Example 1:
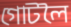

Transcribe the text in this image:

গোটলৈ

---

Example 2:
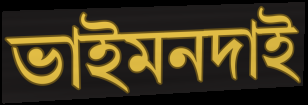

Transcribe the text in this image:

ভাইমনদাই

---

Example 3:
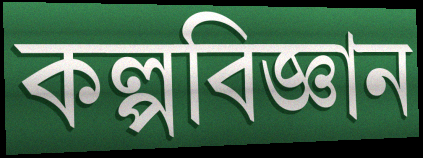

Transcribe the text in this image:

কল্পবিজ্ঞান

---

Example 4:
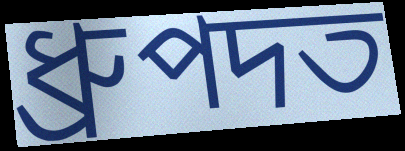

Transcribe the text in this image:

ধ্ৰুপদত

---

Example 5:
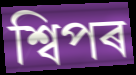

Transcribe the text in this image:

শ্বিপৰ